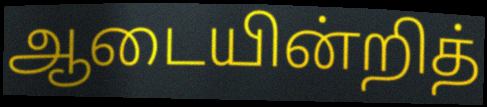
ஆடையின்றித்